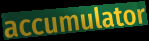
accumulator